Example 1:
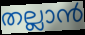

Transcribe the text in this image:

തല്ലാൻ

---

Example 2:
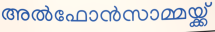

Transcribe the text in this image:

അൽഫോൻസാമ്മയ്ക്ക്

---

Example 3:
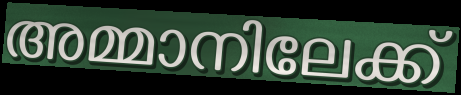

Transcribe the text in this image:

അമ്മാനിലേക്ക്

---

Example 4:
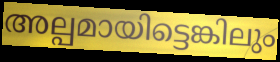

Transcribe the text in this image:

അല്പമായിട്ടെങ്കിലും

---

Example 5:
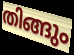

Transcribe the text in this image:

തിങ്ങും